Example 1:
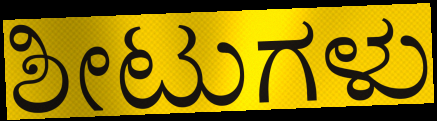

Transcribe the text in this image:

ಶೀಟುಗಳು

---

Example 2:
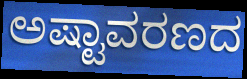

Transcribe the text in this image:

ಅಷ್ಟಾವರಣದ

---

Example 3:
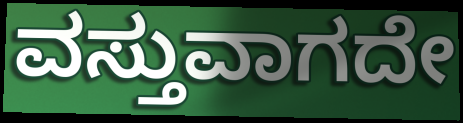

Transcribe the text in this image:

ವಸ್ತುವಾಗದೇ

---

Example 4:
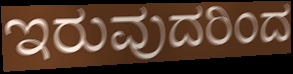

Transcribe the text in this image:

ಇರುವುದರಿಂದ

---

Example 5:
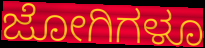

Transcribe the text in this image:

ಜೋಗಿಗಳೂ